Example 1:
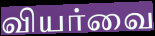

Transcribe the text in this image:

வியர்வை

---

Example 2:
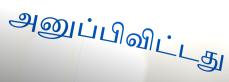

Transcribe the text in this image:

அனுப்பிவிட்டது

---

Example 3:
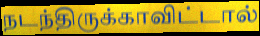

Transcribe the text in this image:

நடந்திருக்காவிட்டால்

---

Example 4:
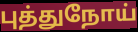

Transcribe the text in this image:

புத்துநோய்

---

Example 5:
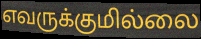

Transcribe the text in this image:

எவருக்குமில்லை